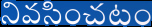
నివసించటం